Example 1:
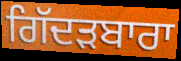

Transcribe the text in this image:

ਗਿੱਦੜਬਾਰਾ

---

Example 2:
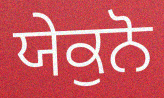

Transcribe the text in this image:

ਯੇਕੁਨੋ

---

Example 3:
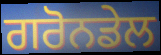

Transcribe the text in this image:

ਗਰੋਨਡੇਲ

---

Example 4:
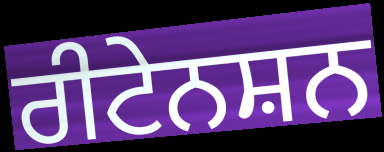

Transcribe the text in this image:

ਰੀਟੇਨਸ਼ਨ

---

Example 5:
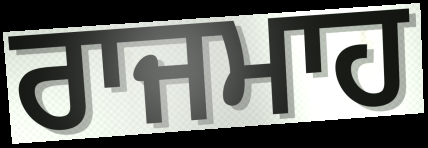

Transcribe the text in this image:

ਰਾਜਮਾਹ